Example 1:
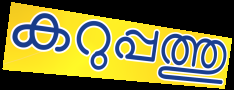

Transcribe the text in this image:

കറുപ്പത്തു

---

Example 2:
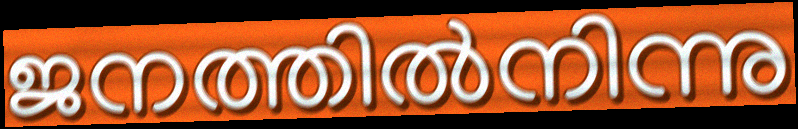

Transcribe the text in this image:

ജനത്തിൽനിന്നു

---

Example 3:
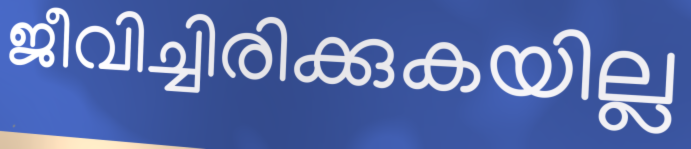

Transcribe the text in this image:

ജീവിച്ചിരിക്കുകയില്ല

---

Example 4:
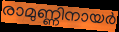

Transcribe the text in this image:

രാമുണ്ണിനായർ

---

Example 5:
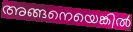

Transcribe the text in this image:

അങ്ങനെയെങ്കിൽ